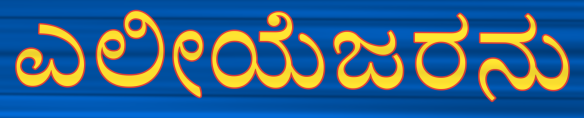
ಎಲೀಯೆಜರನು